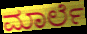
ಮಾರ್ಲೆ